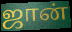
ஜான்